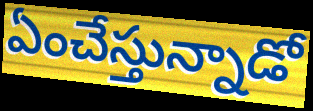
ఏంచేస్తున్నాడో